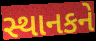
સ્થાનકને